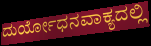
ದುರ್ಯೋಧನವಾಕ್ಯದಲ್ಲಿ